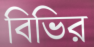
বিভির